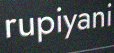
rupiyani